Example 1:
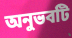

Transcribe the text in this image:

অনুভবটি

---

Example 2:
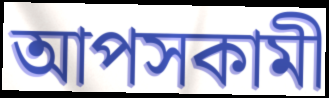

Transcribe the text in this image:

আপসকামী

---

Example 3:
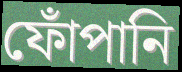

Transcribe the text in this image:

ফোঁপানি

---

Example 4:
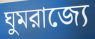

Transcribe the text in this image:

ঘুমরাজ্যে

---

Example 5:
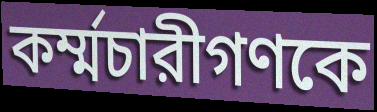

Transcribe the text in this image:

কর্ম্মচারীগণকে